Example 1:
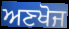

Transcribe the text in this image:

ਅਣਖੋਜ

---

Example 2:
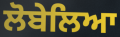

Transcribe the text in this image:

ਲੋਬੇਲਿਆ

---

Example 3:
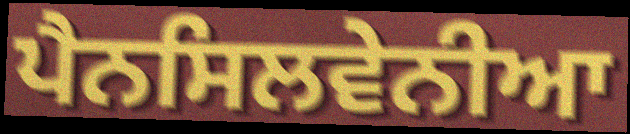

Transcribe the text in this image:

ਪੈਨਸਿਲਵੇਨੀਆ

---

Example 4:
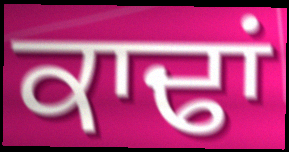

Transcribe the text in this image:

ਕਾਢਾਂ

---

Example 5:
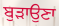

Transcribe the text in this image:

ਬੁੜਾਉਣਾ